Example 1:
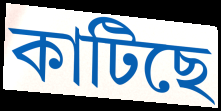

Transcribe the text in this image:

কাটিছে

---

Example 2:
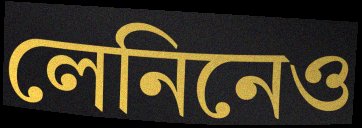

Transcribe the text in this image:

লেনিনেও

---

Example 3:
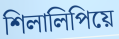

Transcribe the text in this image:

শিলালিপিয়ে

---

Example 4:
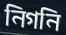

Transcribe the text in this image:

নিগনি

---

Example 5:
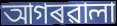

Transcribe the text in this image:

আগৰৱালা